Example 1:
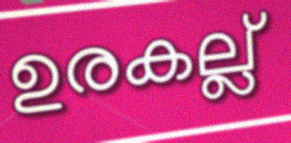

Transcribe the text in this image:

ഉരകല്ല്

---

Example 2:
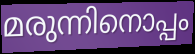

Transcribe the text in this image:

മരുന്നിനൊപ്പം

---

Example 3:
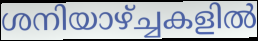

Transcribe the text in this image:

ശനിയാഴ്ച്ചകളിൽ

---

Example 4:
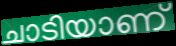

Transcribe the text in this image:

ചാടിയാണ്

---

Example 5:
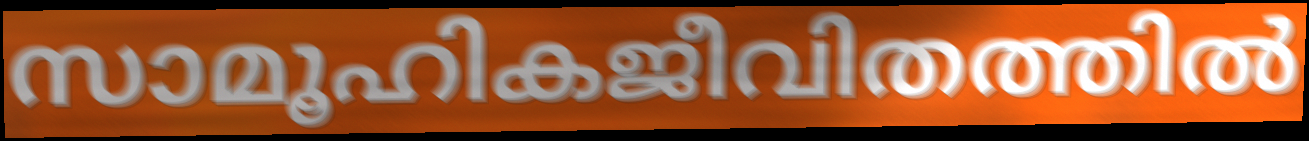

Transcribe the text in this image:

സാമൂഹികജീവിതത്തിൽ